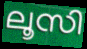
ലൂസി